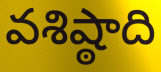
వశిష్ఠాది